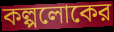
কল্পলোকের